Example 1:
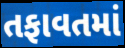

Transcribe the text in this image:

તફાવતમાં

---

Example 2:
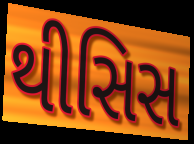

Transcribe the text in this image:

થીસિસ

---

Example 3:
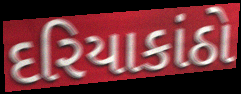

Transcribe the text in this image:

દરિયાકાંઠો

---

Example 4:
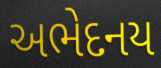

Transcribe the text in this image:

અભેદનય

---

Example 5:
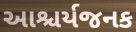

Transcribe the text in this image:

આશ્ચર્યજનક